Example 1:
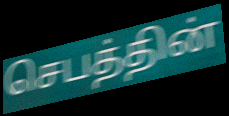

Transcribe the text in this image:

செபத்தின்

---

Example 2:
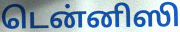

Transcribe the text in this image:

டென்னிஸி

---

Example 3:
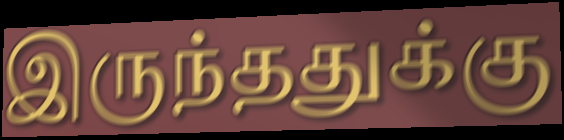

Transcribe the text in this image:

இருந்ததுக்கு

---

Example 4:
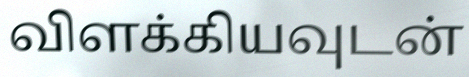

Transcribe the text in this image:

விளக்கியவுடன்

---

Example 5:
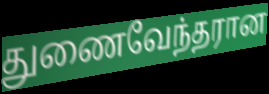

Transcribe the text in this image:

துணைவேந்தரான